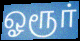
ஓரூர்